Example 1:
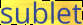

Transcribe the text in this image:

sublet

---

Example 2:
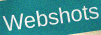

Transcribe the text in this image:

Webshots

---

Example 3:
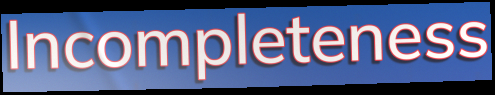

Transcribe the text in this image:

Incompleteness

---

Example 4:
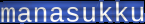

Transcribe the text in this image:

manasukku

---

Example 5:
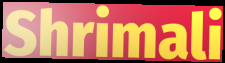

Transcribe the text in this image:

Shrimali